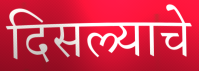
दिसल्याचे